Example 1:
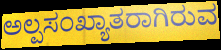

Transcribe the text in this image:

ಅಲ್ಪಸಂಖ್ಯಾತರಾಗಿರುವ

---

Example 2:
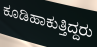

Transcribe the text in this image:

ಕೂಡಿಹಾಕುತ್ತಿದ್ದರು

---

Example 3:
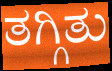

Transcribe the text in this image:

ತಗ್ಗಿತು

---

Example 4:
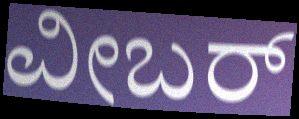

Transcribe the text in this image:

ವೀಬರ್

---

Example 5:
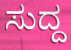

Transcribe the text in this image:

ಸುದ್ದ